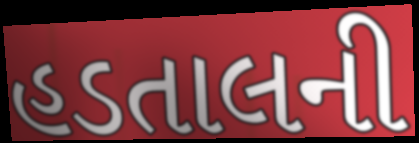
હડતાલની